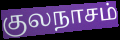
குலநாசம்